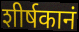
शीर्षकानं